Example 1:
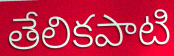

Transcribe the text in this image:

తేలికపాటి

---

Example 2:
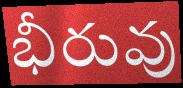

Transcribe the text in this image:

భీరువు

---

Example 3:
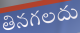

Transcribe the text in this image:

తినగలదు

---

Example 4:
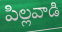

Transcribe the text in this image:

పిల్లవాడి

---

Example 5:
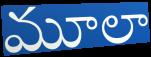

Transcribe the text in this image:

మూలా